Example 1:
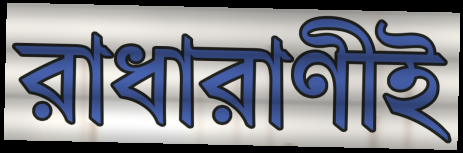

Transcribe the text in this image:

রাধারাণীই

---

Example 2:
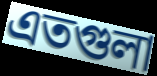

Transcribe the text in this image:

এতগুলা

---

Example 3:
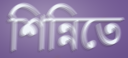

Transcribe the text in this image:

শিন্নিতে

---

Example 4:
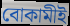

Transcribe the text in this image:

বোকামীই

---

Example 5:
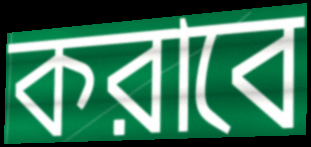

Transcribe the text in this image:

করাবে